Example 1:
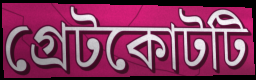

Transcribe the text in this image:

গ্রেটকোটটি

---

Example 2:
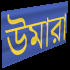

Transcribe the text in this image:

উমারা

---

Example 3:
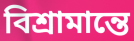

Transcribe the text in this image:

বিশ্রামান্তে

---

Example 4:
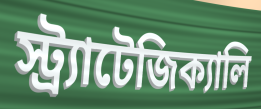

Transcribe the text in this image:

স্ট্র্যাটেজিক্যালি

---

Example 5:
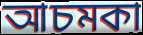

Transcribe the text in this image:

আচমকা